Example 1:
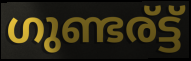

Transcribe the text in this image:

ഗുണ്ടര്ട്ട്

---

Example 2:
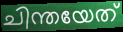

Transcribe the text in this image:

ചിന്തയേത്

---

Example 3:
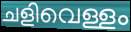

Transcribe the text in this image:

ചളിവെള്ളം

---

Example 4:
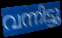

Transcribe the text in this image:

വന്നിട്ടു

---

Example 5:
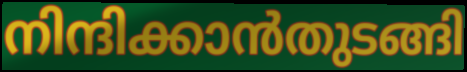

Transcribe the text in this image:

നിന്ദിക്കാൻതുടങ്ങി